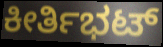
ಕೀರ್ತಿಭಟ್